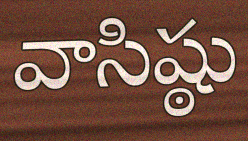
వాసిష్ఠు